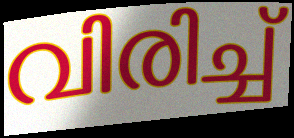
വിരിച്ച്